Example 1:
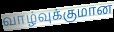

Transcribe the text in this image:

வாழ்வுக்குமான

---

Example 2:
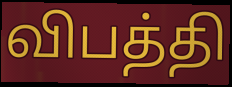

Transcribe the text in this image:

விபத்தி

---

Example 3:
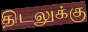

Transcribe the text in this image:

திடலுக்கு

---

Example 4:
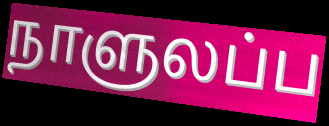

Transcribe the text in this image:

நாளுலப்ப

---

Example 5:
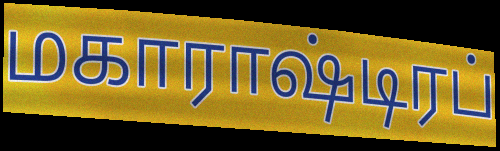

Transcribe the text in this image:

மகாராஷ்டிரப்